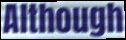
Although